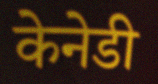
केनेडी